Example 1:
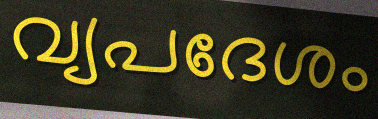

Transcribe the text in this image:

വ്യപദേശം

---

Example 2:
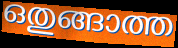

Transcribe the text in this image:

ഒതുങ്ങാത്ത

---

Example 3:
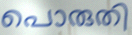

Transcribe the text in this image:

പൊരുതി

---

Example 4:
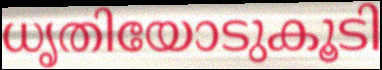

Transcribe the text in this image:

ധൃതിയോടുകൂടി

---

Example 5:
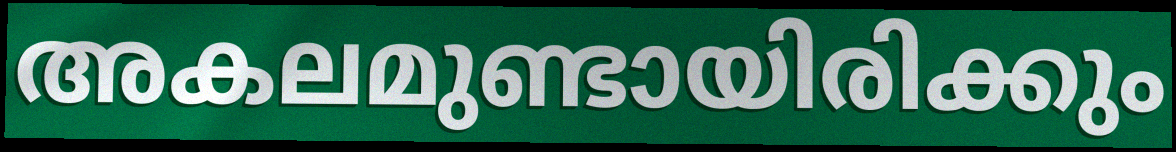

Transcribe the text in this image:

അകലമുണ്ടായിരിക്കും